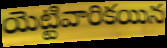
యెట్టివారికయిన